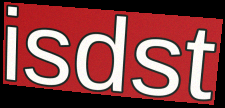
isdst